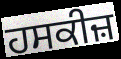
ਹਸਕੀਜ਼